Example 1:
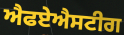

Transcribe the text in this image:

ਐਫਏਐਸਟੀਗ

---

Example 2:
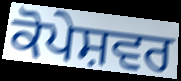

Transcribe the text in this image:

ਕੋਪੇਸ਼ਵਰ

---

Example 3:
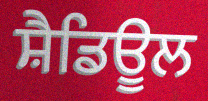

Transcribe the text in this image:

ਸ਼ੈਡਿਊਲ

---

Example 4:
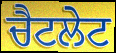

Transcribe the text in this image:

ਚੈਟਲੇਟ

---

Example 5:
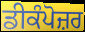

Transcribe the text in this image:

ਡੀਕੰਪੋਜ਼ਰ